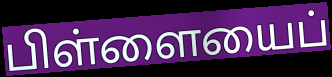
பிள்ளையைப்